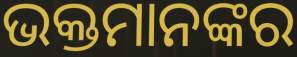
ଭକ୍ତମାନଙ୍କର